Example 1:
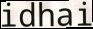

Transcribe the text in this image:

idhai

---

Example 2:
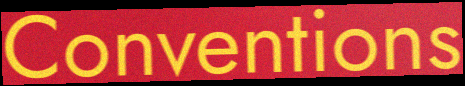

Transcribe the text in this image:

Conventions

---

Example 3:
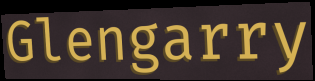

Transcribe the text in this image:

Glengarry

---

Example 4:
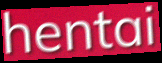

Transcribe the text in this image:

hentai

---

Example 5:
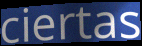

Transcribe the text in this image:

ciertas